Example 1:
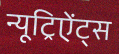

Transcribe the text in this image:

न्यूट्रिऐंट्स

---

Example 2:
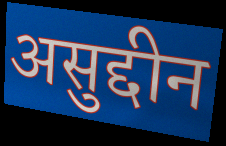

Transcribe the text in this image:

असुद्दीन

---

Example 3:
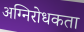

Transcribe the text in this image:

अग्निरोधकता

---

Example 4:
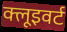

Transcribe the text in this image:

क्लूइवर्ट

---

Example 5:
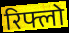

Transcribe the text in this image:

रिफ्लो